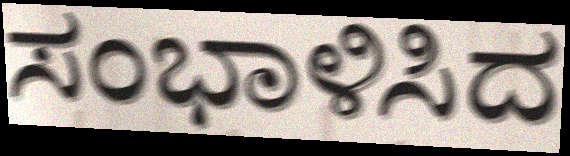
ಸಂಭಾಳಿಸಿದ